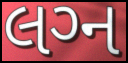
લગ્‍ન